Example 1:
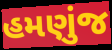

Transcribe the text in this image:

હમણુંજ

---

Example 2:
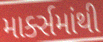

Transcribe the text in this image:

માર્ક્સમાંથી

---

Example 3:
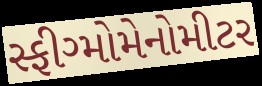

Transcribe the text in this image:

સ્ફીગ્મોમેનોમીટર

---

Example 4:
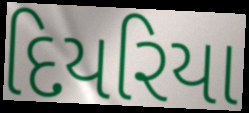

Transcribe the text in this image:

દિયરિયા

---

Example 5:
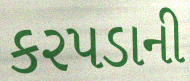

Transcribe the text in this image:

કરપડાની